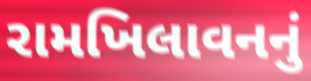
રામખિલાવનનું